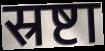
स्रष्टा